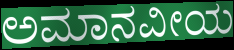
ಅಮಾನವೀಯ